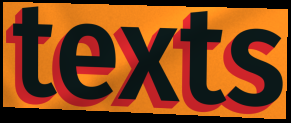
texts